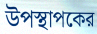
উপস্থাপকের